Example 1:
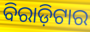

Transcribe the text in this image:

ବିରାଡ଼ିଟାର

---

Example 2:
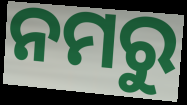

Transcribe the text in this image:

ନମରୁ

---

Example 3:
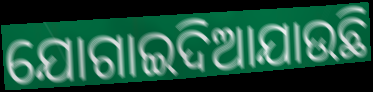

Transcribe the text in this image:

ଯୋଗାଇଦିଆଯାଉଛି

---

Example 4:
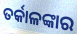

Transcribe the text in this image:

ତର୍କାଳଙ୍କାର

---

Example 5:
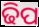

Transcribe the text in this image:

ଢିପ